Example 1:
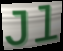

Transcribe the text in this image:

Jl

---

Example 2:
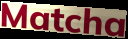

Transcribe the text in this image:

Matcha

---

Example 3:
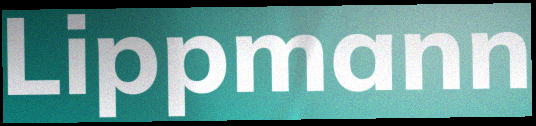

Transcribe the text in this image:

Lippmann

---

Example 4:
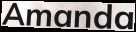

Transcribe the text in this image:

Amanda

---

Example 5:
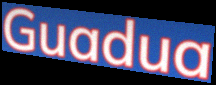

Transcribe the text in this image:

Guadua